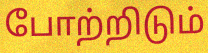
போற்றிடும்